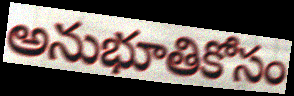
అనుభూతికోసం